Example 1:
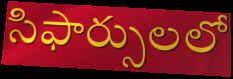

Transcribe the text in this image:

సిఫార్సులలో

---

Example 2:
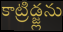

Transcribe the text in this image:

కాట్రిడ్జ్లను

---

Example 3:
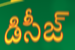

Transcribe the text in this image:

డిసీజ్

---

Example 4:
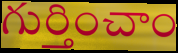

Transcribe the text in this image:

గుర్తించాం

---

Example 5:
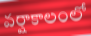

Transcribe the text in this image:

వర్షాకాలంలో